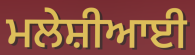
ਮਲੇਸ਼ੀਆਈ